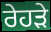
ਰੇਹੜੇ